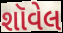
શૉવેલ